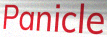
Panicle